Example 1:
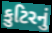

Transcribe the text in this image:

કુટિરનું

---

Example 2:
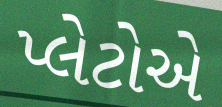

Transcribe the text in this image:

પ્લેટોએ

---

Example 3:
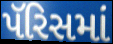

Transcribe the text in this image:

પૅરિસમાં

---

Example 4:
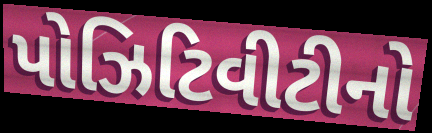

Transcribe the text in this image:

પોઝિટિવીટીનો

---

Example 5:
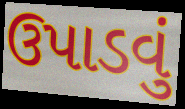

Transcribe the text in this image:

ઉપાડવું